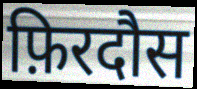
फ़िरदौस